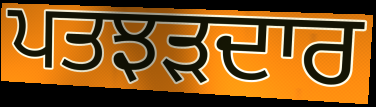
ਪਤਝੜਦਾਰ